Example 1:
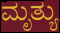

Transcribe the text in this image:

ಮೃತ್ಯು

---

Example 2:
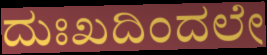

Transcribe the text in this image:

ದುಃಖದಿಂದಲೇ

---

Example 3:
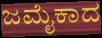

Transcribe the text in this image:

ಜಮೈಕಾದ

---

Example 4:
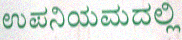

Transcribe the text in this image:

ಉಪನಿಯಮದಲ್ಲಿ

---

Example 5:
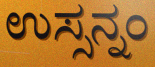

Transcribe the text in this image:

ಉಸ್ಸನ್ನಂ